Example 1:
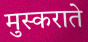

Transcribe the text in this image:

मुस्‍कराते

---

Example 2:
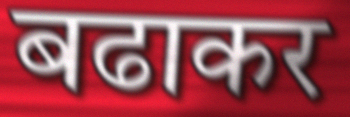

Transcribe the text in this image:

बढाकर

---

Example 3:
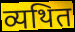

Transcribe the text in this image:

व्यथित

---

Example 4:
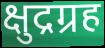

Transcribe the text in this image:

क्षुद्रग्रह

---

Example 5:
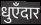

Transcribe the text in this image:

धुएँदार